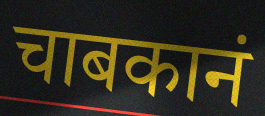
चाबकानं